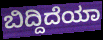
ಬಿದ್ದಿದೆಯಾ